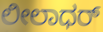
ಲೀಲಾಧರ್